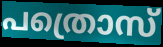
പത്രൊസ്